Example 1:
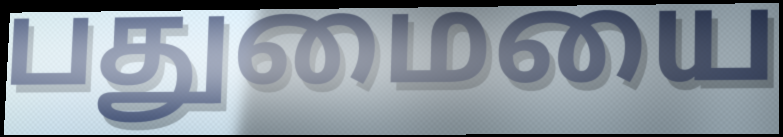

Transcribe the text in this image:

பதுமையை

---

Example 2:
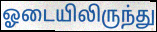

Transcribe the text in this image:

ஓடையிலிருந்து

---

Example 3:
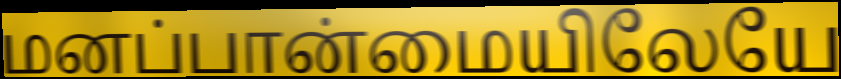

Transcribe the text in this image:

மனப்பான்மையிலேயே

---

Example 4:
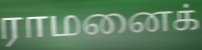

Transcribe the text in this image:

ராமனைக்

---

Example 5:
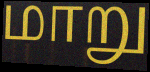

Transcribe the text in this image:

மாறு